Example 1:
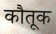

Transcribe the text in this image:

कौतूक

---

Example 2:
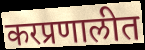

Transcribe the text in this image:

करप्रणालीत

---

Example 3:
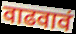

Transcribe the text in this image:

वाढवावं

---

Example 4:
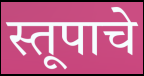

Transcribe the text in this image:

स्तूपाचे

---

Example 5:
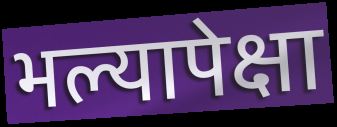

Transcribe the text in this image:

भल्यापेक्षा